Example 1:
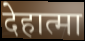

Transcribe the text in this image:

देहात्मा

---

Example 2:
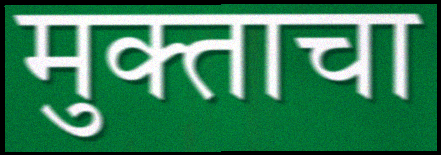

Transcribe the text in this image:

मुक्ताचा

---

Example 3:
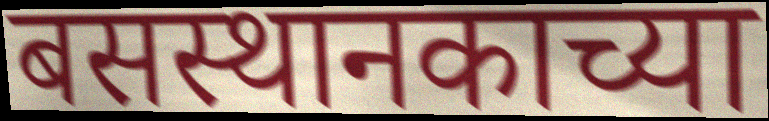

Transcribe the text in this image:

बसस्थानकाच्या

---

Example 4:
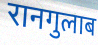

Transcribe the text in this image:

रानगुलाब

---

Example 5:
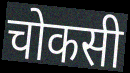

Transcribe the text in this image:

चोकसी